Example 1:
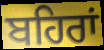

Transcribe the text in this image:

ਬਹਿਰਾਂ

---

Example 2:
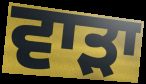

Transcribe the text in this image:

ਵਾੜਾ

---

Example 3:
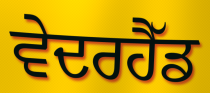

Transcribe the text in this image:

ਵੇਦਰਹੈੱਡ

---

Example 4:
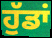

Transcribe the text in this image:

ਹੁੱਡਾਂ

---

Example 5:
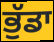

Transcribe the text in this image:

ਭੁੱਡਾ